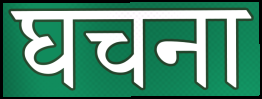
घचना